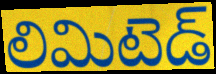
లిమిటెడ్